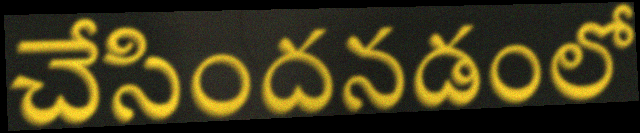
చేసిందనడంలో